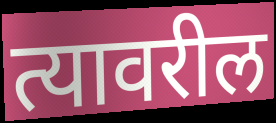
त्यावरील